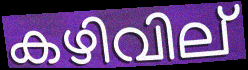
കഴിവില്